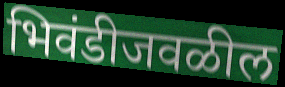
भिवंडीजवळील